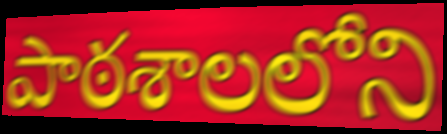
పాఠశాలలోని